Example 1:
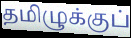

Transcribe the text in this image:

தமிழுக்குப்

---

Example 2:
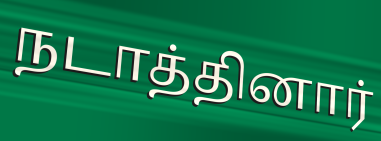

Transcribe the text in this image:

நடாத்தினார்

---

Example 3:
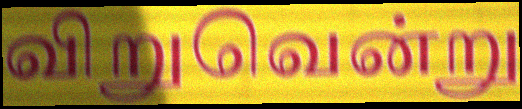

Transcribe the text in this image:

விறுவென்று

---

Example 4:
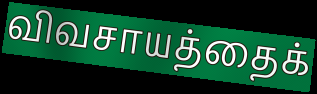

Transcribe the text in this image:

விவசாயத்தைக்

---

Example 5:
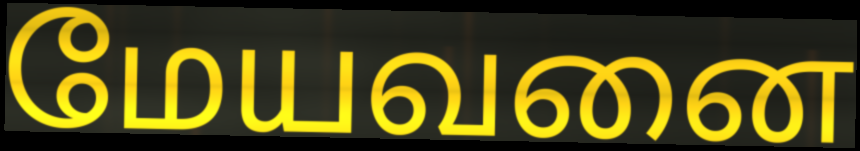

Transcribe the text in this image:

மேயவனை